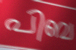
പിബ